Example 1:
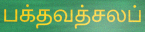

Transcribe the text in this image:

பக்தவத்சலப்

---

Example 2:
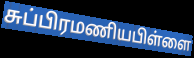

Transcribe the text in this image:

சுப்பிரமணியபிள்ளை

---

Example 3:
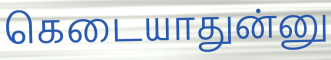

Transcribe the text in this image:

கெடையாதுன்னு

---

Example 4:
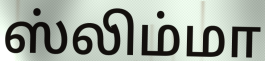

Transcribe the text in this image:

ஸ்லிம்மா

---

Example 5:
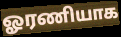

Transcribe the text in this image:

ஓரணியாக